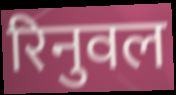
रिनुवल